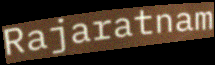
Rajaratnam